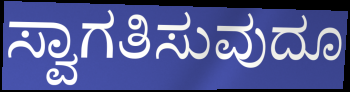
ಸ್ವಾಗತಿಸುವುದೂ